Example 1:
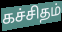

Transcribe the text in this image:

கச்சிதம்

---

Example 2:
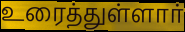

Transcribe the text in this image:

உரைத்துள்ளார்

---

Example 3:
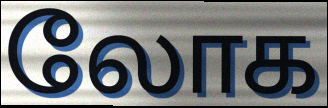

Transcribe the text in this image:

லோக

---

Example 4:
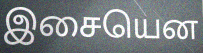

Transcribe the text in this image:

இசையென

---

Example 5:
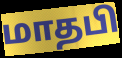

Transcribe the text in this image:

மாதபி